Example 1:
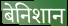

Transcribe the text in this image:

बेनिशान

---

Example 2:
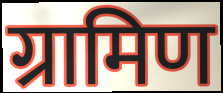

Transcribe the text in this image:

ग्रामिण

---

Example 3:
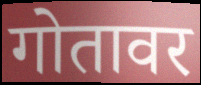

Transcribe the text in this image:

गोतावर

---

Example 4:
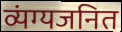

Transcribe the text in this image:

व्यंग्यजनित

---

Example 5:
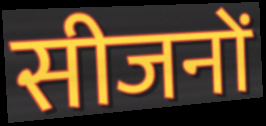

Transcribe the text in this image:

सीजनों